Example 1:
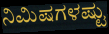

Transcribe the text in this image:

ನಿಮಿಷಗಳಷ್ಟು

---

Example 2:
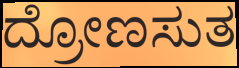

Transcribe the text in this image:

ದ್ರೋಣಸುತ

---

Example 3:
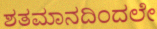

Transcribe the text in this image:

ಶತಮಾನದಿಂದಲೇ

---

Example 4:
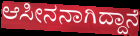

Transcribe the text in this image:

ಆಸೀನನಾಗಿದ್ದಾನೆ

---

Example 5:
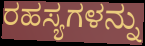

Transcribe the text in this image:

ರಹಸ್ಯಗಳನ್ನು